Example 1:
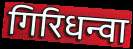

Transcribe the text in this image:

गिरिधन्वा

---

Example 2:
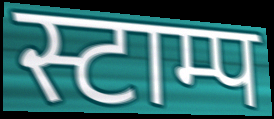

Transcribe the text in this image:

स्टाम्प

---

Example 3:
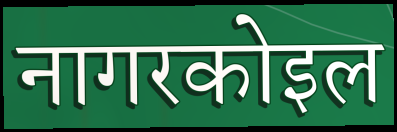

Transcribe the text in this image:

नागरकोइल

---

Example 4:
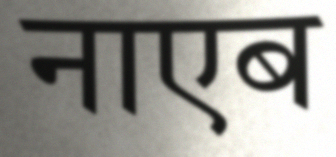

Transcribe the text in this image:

नाएब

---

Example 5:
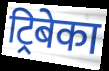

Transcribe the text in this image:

ट्रिबेका